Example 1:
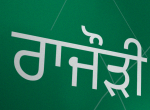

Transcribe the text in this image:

ਰਾਜੌੜੀ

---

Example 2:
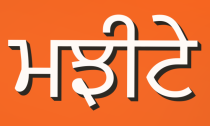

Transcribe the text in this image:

ਮਝੀਟੇ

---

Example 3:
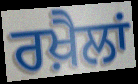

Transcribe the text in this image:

ਰਖ਼ੈਲਾਂ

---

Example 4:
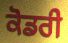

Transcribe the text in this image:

ਕੋਡਰੀ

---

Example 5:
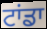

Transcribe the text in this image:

ਟਾਂਡਾ